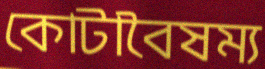
কোটাবৈষম্য